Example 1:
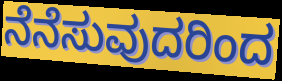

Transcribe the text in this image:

ನೆನೆಸುವುದರಿಂದ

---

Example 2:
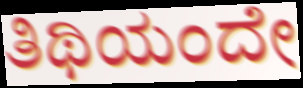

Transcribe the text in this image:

ತಿಥಿಯಂದೇ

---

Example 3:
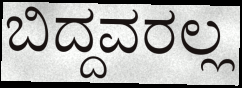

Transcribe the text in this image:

ಬಿದ್ದವರಲ್ಲ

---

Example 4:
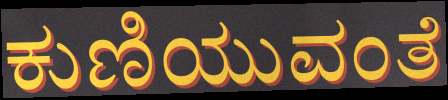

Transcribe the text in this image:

ಕುಣಿಯುವಂತೆ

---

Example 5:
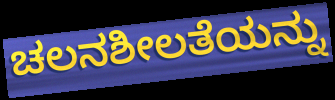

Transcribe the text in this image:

ಚಲನಶೀಲತೆಯನ್ನು